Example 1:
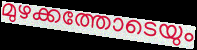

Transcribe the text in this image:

മുഴക്കത്തോടെയും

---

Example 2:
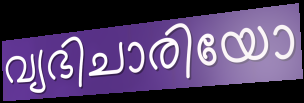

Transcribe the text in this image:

വ്യഭിചാരിയോ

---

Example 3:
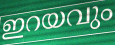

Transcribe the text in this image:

ഇറയവും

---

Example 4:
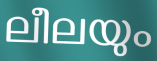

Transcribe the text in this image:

ലീലയും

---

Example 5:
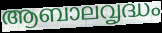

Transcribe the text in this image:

ആബാലവൃദ്ധം